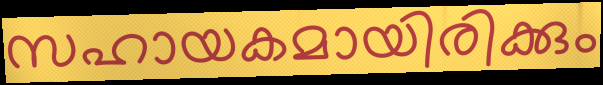
സഹായകമായിരിക്കും